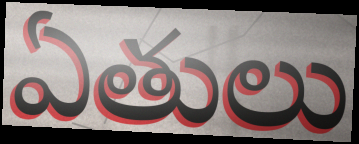
ఏతులు